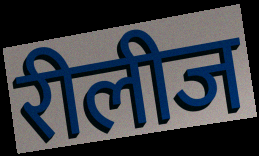
रीलीज